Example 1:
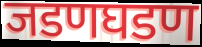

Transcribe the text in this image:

जडणघडण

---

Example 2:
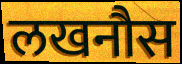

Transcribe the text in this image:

लखनौस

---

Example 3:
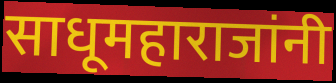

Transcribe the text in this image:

साधूमहाराजांनी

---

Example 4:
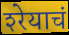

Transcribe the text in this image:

श्रेयाचं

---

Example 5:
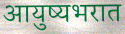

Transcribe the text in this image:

आयुष्यभरात